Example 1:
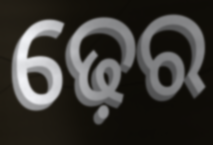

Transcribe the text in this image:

ଢ଼େର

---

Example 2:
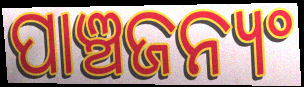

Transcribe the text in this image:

ପାଞ୍ଚଜନ୍ୟଂ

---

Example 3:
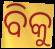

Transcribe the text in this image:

ବିକୁ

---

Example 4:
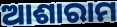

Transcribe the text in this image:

ଆଶାରାମ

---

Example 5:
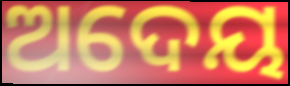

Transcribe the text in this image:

ଅଦେୟ